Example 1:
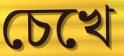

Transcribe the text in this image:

চেখে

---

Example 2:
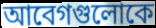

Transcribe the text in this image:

আবেগগুলোকে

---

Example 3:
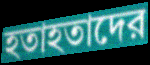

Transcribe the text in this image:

হতাহতাদের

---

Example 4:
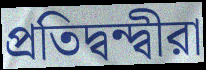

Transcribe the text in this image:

প্রতিদ্বন্দ্বীরা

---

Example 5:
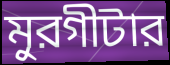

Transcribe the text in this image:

মুরগীটার